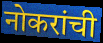
नोकरांची